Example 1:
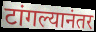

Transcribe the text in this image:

टांगल्यानंतर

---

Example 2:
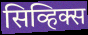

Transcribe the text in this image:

सिव्हिक्स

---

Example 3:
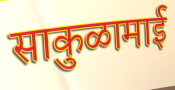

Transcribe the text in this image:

साकुळामाई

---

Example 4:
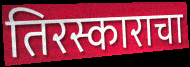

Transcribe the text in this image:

तिरस्काराचा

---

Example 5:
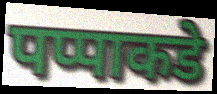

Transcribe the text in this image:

पप्पाकडे